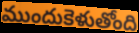
ముందుకెళుతోంది